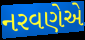
નરવણેએ